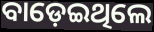
ବାଡ଼େଇଥିଲେ